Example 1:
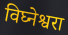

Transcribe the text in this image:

विघ्नेश्वरा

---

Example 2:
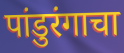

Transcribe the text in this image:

पांडुरंगाचा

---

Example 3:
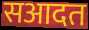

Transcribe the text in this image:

सआदत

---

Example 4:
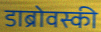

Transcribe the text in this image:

डाब्रोवस्की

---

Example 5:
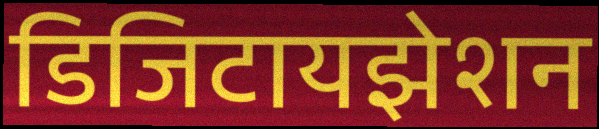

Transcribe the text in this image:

डिजिटायझेशन